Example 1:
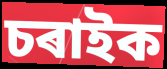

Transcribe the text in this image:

চৰাইক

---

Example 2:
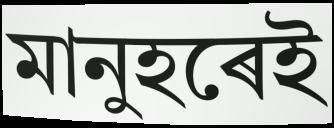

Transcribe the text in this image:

মানুহৰেই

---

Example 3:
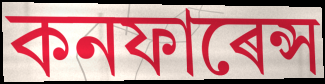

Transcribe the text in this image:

কনফাৰেন্স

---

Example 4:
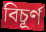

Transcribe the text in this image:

বিচূৰ্ণ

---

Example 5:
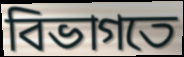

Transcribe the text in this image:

বিভাগতে